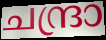
ചന്ദ്രാ